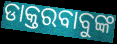
ଡାକ୍ତରବାବୁଙ୍କ